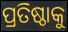
ପ୍ରତିଷ୍ଠାକୁ